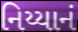
નિય્યાનં